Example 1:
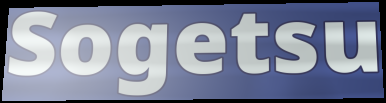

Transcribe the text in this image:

Sogetsu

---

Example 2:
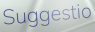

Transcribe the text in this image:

Suggestio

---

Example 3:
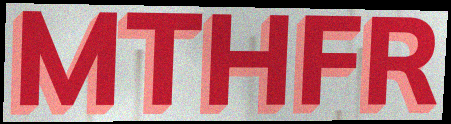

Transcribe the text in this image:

MTHFR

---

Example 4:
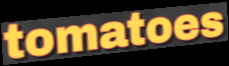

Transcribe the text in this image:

tomatoes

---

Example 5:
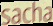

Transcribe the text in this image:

sacha